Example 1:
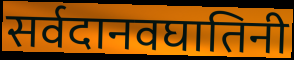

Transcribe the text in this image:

सर्वदानवघातिनी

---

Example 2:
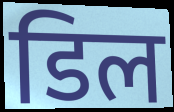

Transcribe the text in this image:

डिल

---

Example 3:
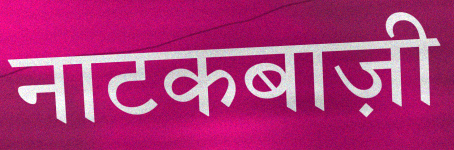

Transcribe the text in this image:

नाटकबाज़ी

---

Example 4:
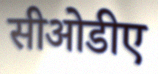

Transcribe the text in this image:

सीओडीए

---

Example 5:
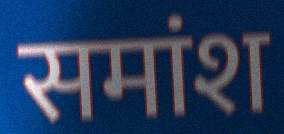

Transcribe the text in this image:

समांश